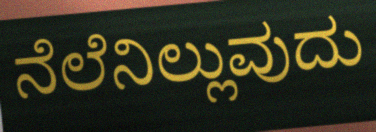
ನೆಲೆನಿಲ್ಲುವುದು